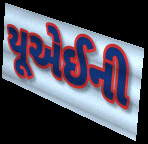
યૂએઈની